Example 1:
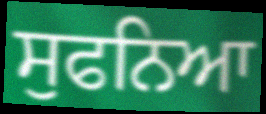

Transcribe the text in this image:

ਸੁਫਨਿਆ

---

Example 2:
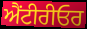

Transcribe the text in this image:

ਐਂਟੀਰੀਓਰ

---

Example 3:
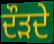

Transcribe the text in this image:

ਦੌੜਦੇ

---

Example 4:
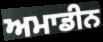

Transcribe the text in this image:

ਅਮਾਡੀਨ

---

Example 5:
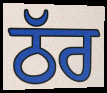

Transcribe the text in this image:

ਠੱਰ